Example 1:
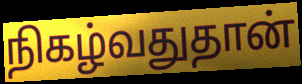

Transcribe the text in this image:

நிகழ்வதுதான்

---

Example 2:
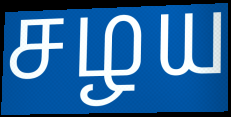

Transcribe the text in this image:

சழய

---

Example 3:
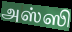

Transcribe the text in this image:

அஸ்ஸி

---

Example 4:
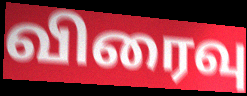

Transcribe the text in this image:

விரைவு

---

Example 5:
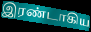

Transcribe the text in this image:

இரண்டாகிய